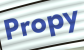
Propy